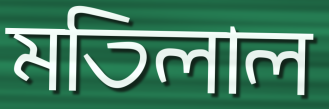
মতিলাল